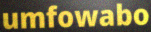
umfowabo